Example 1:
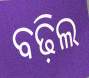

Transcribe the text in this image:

ବଢ଼ିଲ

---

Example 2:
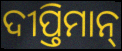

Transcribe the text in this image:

ଦୀପ୍ତିମାନ୍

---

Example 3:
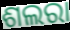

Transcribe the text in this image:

ଶଲରା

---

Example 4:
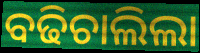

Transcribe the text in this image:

ବଢିଚାଲିଲା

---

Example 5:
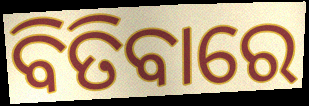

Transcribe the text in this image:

ବିତିବାରେ